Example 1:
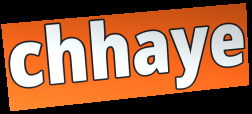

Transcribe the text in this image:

chhaye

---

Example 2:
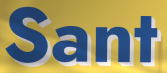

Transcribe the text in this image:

Sant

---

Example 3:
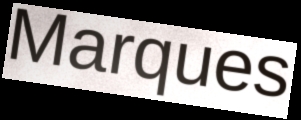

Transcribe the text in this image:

Marques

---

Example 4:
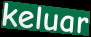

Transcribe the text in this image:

keluar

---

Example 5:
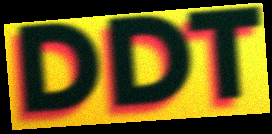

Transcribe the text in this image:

DDT